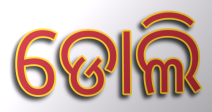
ଡୋଲି